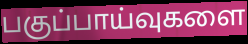
பகுப்பாய்வுகளை